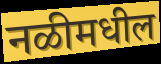
नळीमधील